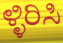
ಳ್ಳಿರಿಸಿ